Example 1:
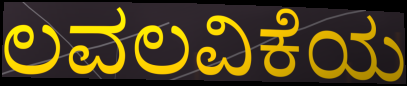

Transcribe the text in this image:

ಲವಲವಿಕೆಯ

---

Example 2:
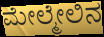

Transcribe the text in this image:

ಮೇಲ್ಮೇಲಿನ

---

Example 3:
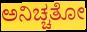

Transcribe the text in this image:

ಅನಿಚ್ಚತೋ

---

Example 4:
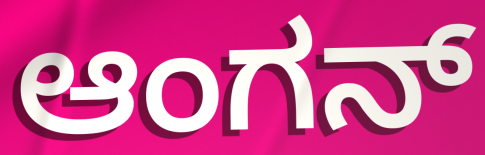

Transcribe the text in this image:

ಆಂಗನ್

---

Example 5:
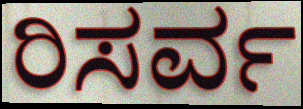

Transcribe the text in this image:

ರಿಸರ್ವ